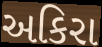
અકિરા